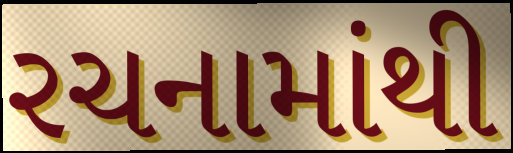
રચનામાંથી